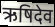
ऋषिदेव